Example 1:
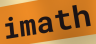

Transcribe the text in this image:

imath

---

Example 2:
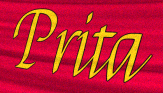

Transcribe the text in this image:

Prita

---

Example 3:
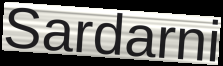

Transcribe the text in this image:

Sardarni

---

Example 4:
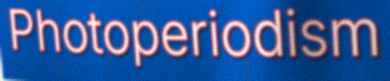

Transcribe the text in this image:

Photoperiodism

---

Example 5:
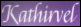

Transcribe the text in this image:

Kathirvel